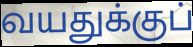
வயதுக்குப்